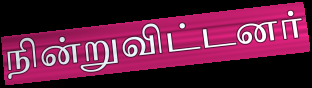
நின்றுவிட்டனர்